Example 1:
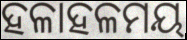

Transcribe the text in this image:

ହଳାହଳମୟ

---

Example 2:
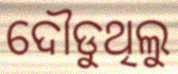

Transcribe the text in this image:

ଦୌଡୁଥିଲୁ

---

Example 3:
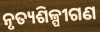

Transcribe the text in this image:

ନୃତ୍ୟଶିଳ୍ପୀଗଣ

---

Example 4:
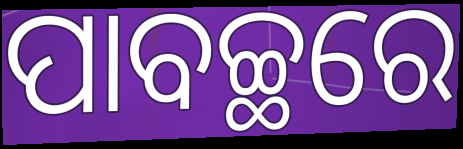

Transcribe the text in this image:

ପାବଚ୍ଛରେ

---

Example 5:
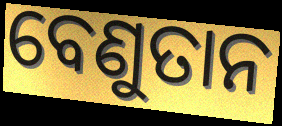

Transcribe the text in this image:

ବେଣୁତାନ